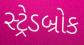
સ્ટ્રેડબ્રોક